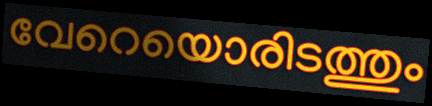
വേറെയൊരിടത്തും